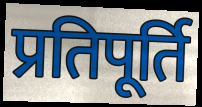
प्रतिपूर्ति